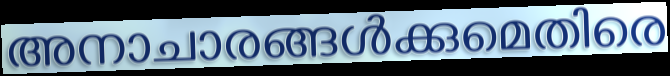
അനാചാരങ്ങൾക്കുമെതിരെ